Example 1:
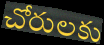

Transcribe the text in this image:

చోరులకు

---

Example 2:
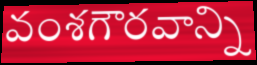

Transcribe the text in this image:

వంశగౌరవాన్ని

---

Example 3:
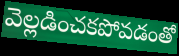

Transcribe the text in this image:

వెల్లడించకపోవడంతో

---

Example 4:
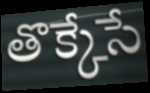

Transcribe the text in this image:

తొక్కేసే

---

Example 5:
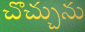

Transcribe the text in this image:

చొచ్చును